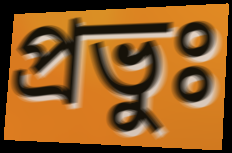
প্রভুঃ